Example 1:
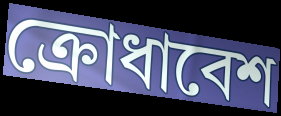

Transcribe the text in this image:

ক্রোধাবেশ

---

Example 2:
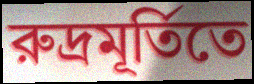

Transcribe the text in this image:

রুদ্রমূর্তিতে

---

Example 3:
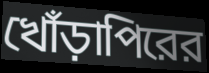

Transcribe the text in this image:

খোঁড়াপিরের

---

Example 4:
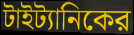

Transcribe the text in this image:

টাইট্যানিকের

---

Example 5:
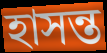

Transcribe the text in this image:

হাসন্ত